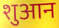
शुआन